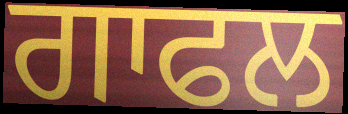
ਗਾਫਲ